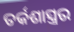
ତର୍କଶାସ୍ତ୍ରର